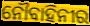
ନୌବାହିନୀର